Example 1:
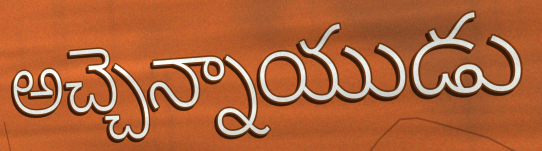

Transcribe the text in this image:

అచ్చెన్నాయుడు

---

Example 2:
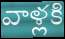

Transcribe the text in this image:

వాళ్లకి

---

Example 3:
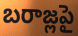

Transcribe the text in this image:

బరాజ్లపై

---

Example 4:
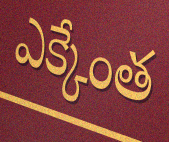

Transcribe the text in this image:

ఎక్కేంత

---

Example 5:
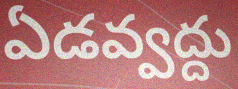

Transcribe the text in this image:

ఏడవ్వద్దు